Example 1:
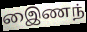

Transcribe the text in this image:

இைணந்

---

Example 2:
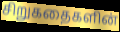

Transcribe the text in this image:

சிறுகதைகளின்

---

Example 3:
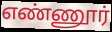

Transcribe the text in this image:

எண்ணூர்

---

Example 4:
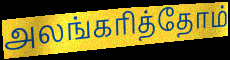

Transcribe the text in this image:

அலங்கரித்தோம்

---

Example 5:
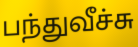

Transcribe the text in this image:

பந்துவீச்சு